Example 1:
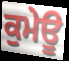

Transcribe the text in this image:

ਕੁਮੇਊ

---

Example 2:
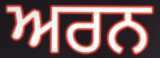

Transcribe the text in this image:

ਅਰਨ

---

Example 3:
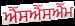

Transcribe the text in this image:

ਐੱਸਐੱਸਐੱਮ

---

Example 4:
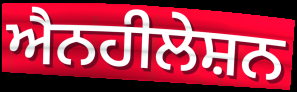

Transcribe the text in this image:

ਐਨਹੀਲੇਸ਼ਨ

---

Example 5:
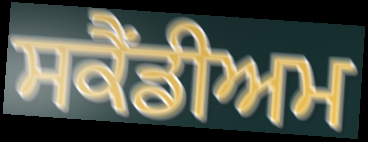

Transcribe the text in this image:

ਸਕੈਂਡੀਅਮ